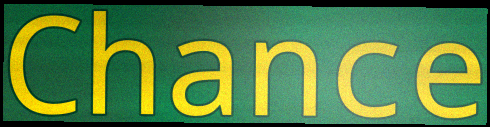
Chance